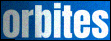
orbites